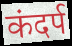
कंदर्प